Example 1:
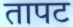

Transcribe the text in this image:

तापट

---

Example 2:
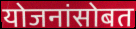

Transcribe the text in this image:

योजनांसोबत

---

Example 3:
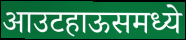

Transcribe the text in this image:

आउटहाऊसमध्ये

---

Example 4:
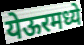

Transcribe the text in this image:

येऊरमध्ये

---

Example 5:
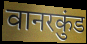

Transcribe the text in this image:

वानरकुंड